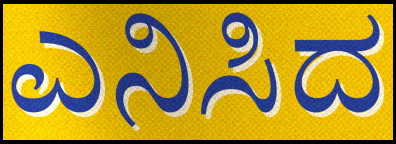
ಎನಿಸಿದ